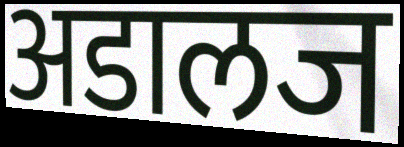
अडालज